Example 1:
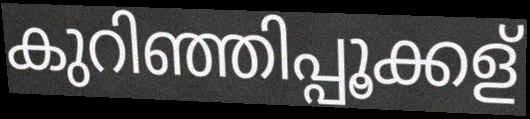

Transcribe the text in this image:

കുറിഞ്ഞിപ്പൂക്കള്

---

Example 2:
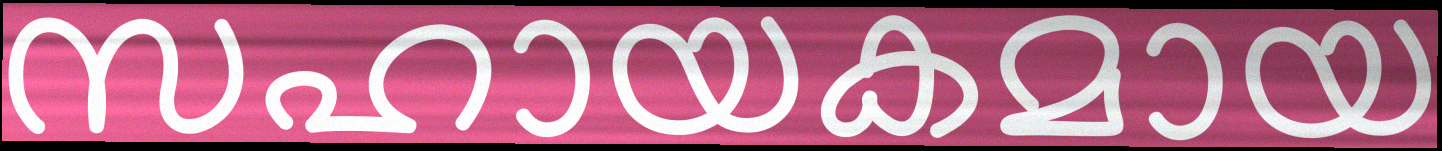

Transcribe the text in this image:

സഹായകമായ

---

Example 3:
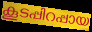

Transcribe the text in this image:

കൂടപ്പിറപ്പായ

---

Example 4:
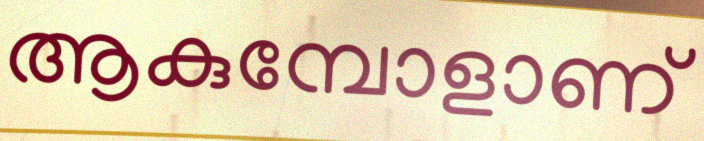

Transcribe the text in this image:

ആകുമ്പോളാണ്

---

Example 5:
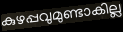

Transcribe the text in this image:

കുഴപ്പവുമുണ്ടാകില്ല